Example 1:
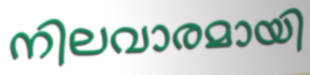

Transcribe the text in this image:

നിലവാരമായി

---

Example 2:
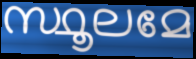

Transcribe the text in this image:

സ്ഥൂലമേ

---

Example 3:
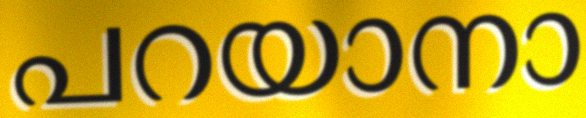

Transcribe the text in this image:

പറയാനാ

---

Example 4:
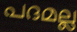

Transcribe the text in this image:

പദമല്ല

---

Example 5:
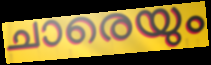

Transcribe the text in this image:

ചാരെയും